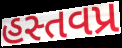
હસ્તવપ્ર